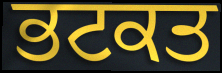
ਭਟਕਤ